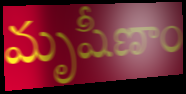
మృషీణాం